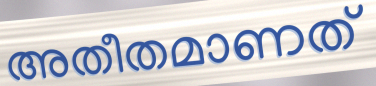
അതീതമാണത്